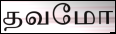
தவமோ